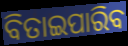
ବିତାଇପାରିବ